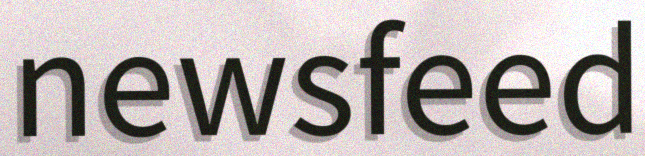
newsfeed